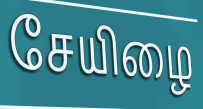
சேயிழை